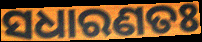
ସଧାରଣତଃ